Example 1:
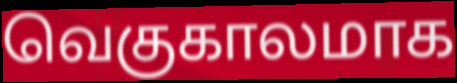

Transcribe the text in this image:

வெகுகாலமாக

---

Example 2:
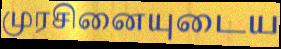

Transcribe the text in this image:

முரசினையுடைய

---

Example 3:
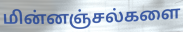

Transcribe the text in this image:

மின்னஞ்சல்களை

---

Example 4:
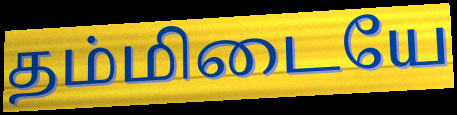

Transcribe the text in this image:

தம்மிடையே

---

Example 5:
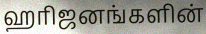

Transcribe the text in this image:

ஹரிஜனங்களின்